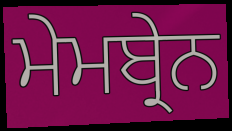
ਮੇਮਬ੍ਰੇਨ